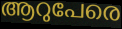
ആറുപേരെ